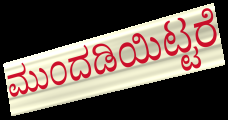
ಮುಂದಡಿಯಿಟ್ಟರೆ